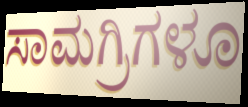
ಸಾಮಗ್ರಿಗಳೂ